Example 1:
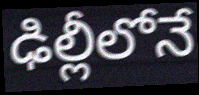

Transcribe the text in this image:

ఢిల్లీలోనే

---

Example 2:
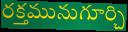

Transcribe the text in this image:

రక్తమునుగూర్చి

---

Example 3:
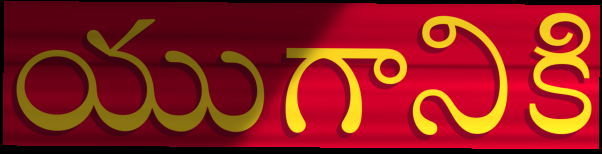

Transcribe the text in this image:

యుగానికి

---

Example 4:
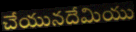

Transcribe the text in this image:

చేయునదేమియు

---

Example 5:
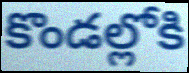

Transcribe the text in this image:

కొండల్లోకి